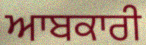
ਆਬਕਾਰੀ